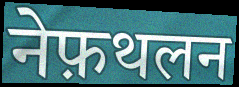
नेफ़थलन